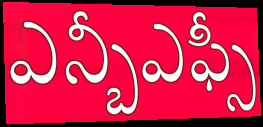
ఎన్బీఎఫ్సీ